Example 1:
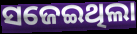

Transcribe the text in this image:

ସଜେଇଥିଲା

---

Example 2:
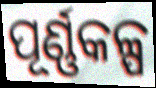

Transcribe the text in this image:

ପୂର୍ଣ୍ଣକଳ୍ପ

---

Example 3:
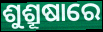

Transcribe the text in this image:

ଶୁଶ୍ରୂଷାରେ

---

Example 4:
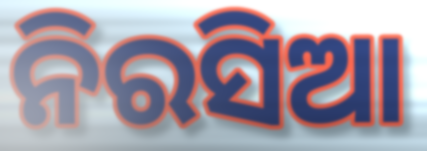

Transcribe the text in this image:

ନିରସିଆ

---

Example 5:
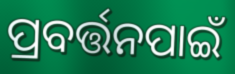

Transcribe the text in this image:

ପ୍ରବର୍ତ୍ତନପାଇଁ